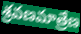
శ్రవణమాత్రేణ